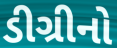
ડીગ્રીનો